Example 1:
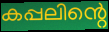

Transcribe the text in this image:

കപ്പലിന്റെ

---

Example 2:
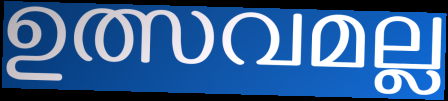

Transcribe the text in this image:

ഉത്സവമല്ല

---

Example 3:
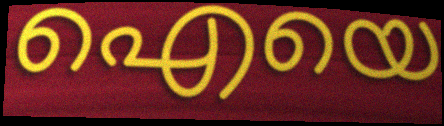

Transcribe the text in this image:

ഐയെ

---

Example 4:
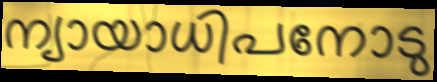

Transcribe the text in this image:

ന്യായാധിപനോടു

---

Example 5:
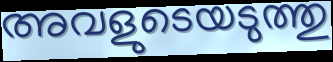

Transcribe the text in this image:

അവളുടെയടുത്തു